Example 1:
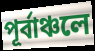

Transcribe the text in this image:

পূর্বাঞ্চলে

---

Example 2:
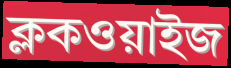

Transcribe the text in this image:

ক্লকওয়াইজ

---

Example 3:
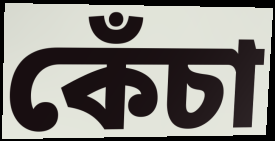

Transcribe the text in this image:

কেঁচা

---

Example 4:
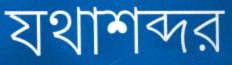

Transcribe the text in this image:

যথাশব্দর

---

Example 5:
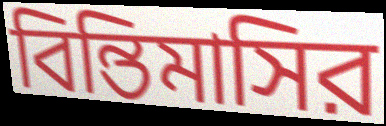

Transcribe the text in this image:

বিন্তিমাসির